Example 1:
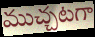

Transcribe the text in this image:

ముచ్చటగా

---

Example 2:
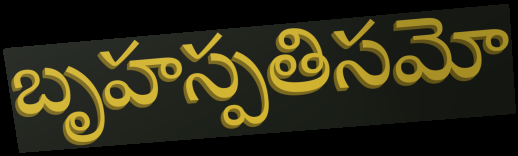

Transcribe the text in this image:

బృహస్పతిసమో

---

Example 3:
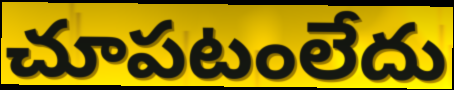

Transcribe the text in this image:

చూపటంలేదు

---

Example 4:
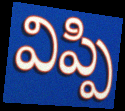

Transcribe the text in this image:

విప్పి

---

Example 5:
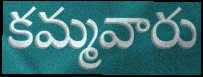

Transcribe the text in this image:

కమ్మవారు